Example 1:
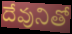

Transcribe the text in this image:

దేవునితో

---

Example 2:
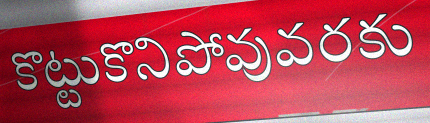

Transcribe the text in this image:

కొట్టుకొనిపోవువరకు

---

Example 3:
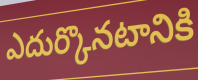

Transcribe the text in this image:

ఎదుర్కొనటానికి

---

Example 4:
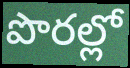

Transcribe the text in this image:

పొరల్లో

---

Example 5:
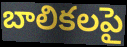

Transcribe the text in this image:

బాలికలపై